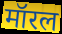
मॉरल